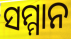
ସମ୍ମାନ